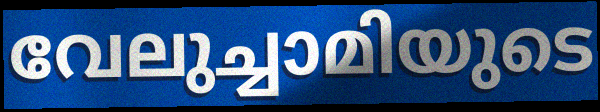
വേലുച്ചാമിയുടെ